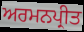
ਅਰਮਨਪ੍ਰੀਤ